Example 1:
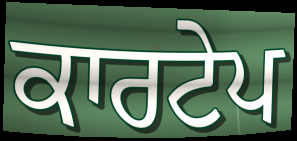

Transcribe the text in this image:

ਕਾਰਟੇਪ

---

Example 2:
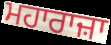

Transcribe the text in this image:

ਮਹਾਰਾਜ਼ਾ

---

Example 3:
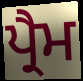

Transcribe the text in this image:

ਪ੍ਰੈਮ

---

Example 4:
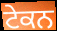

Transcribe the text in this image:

ਟੇਕਨ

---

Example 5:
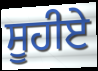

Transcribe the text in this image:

ਸੂਹੀਏ